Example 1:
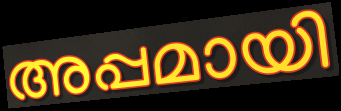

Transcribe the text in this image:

അപ്പമായി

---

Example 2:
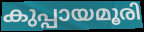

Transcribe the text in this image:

കുപ്പായമൂരി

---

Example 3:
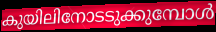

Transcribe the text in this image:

കുയിലിനോടടുക്കുമ്പോൾ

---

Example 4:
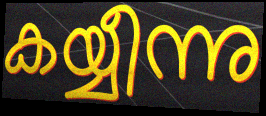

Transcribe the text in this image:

കയ്യീന്നു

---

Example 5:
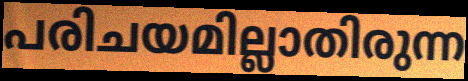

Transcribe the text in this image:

പരിചയമില്ലാതിരുന്ന